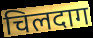
चिलदाग